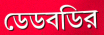
ডেডবডির